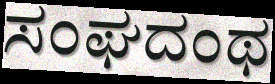
ಸಂಘದಂಥ